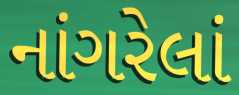
નાંગરેલાં